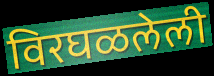
विरघळलेली